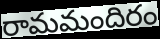
రామమందిరం